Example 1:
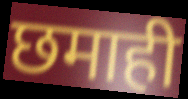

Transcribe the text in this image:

छमाही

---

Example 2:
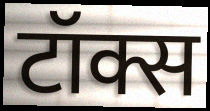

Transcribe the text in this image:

टॉक्स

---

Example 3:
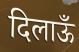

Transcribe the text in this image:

दिलाऊँ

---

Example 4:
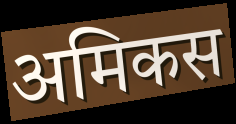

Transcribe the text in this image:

अमिकस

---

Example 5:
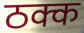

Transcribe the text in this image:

ठक्क